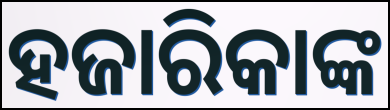
ହଜାରିକାଙ୍କ